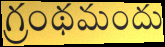
గ్రంథమందు